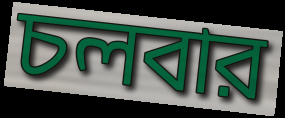
চলবার